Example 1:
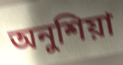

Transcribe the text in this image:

অনুশিয়া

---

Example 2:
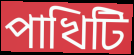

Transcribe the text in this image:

পাখিটি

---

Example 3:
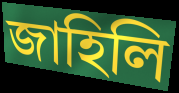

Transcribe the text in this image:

জাহিলি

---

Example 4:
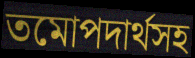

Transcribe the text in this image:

তমোপদার্থসহ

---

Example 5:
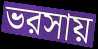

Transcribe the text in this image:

ভরসায়